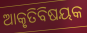
ଆକୃତିବିଷୟକ